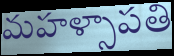
మహళ్సాపతి